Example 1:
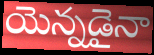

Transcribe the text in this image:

యెన్నడైనా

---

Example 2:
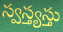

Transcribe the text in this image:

స్వస్త్యస్తు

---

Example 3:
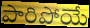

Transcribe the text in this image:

పారిపోయే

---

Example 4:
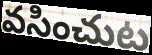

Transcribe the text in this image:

వసించుట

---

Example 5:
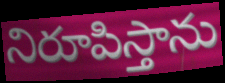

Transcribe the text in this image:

నిరూపిస్తాను